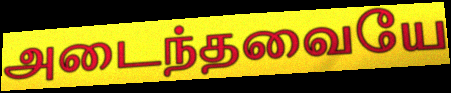
அடைந்தவையே